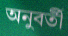
অনুবর্তী